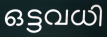
ഒട്ടവധി